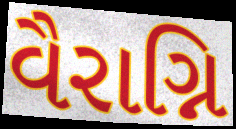
વૈરાગ્નિ